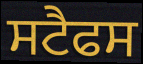
ਸਟੈਫਸ